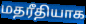
மதரீதியாக